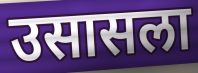
उसासला